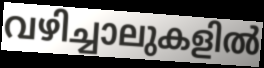
വഴിച്ചാലുകളിൽ